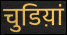
चुडिय़ां